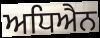
ਅਧਿਐਨ